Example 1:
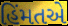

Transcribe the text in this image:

હિંમતએ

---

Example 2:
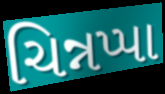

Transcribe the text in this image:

ચિન્નપ્પા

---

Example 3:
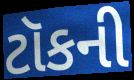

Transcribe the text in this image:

ટૉકની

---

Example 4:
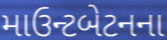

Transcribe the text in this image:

માઉન્ટબેટનના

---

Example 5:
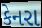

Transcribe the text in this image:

કેનરા